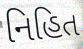
નિહિત